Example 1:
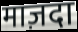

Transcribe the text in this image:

माज़दा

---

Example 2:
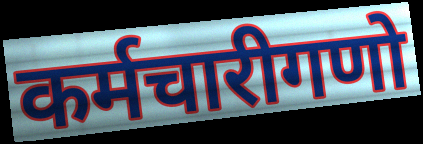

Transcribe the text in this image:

कर्मचारीगणो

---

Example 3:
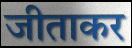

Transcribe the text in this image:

जीताकर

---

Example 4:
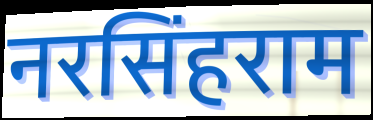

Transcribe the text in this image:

नरसिंहराम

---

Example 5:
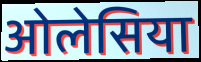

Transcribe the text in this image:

ओलेसिया